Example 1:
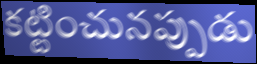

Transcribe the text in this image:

కట్టించునప్పుడు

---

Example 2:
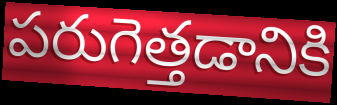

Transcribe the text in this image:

పరుగెత్తడానికి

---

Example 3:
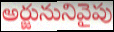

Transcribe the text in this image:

అర్జునునివైపు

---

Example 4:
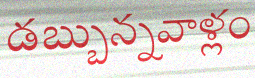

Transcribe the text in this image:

డబ్బున్నవాళ్లం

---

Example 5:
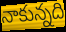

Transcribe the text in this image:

నాకున్నది